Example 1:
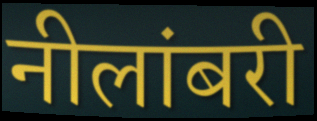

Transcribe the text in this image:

नीलांबरी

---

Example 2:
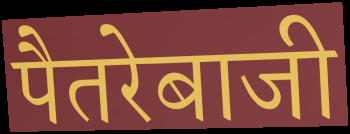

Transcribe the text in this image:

पैतरेबाजी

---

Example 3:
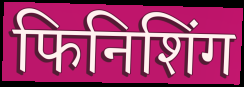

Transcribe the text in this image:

फिनिशिंग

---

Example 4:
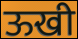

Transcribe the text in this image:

ऊखी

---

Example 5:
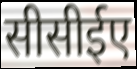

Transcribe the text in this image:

सीसीईए